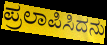
ಪ್ರಲಾಪಿಸಿದನು